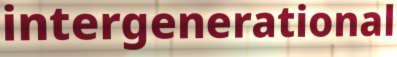
intergenerational